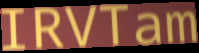
IRVTam